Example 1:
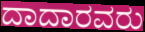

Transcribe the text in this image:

ದಾದಾರವರು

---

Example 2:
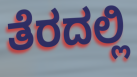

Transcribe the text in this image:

ತೆರದಲ್ಲಿ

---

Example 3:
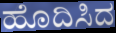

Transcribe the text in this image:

ಹೊದಿಸಿದ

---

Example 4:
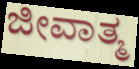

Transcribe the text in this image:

ಜೀವಾತ್ಮ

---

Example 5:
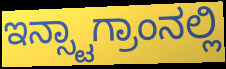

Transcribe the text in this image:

ಇನ್ಸ್ಟಾಗ್ರಾಂನಲ್ಲಿ